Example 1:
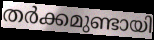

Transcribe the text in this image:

തർക്കമുണ്ടായി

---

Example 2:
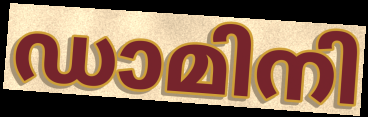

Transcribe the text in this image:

ഡാമിനി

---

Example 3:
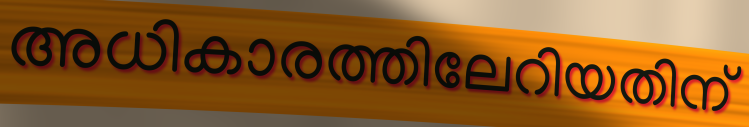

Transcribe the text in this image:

അധികാരത്തിലേറിയതിന്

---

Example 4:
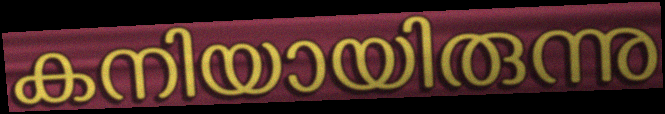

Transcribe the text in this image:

കനിയായിരുന്നു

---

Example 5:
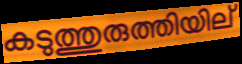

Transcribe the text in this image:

കടുത്തുരുത്തിയില്